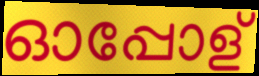
ഓപ്പോള്